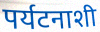
पर्यटनाशी